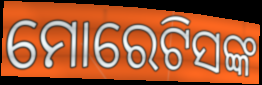
ମୋରେଟିସଙ୍କ